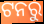
ଟନରୁ